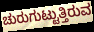
ಚುರುಗುಟ್ಟುತ್ತಿರುವ